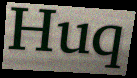
Huq